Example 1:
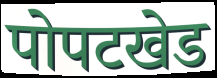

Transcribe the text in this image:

पोपटखेड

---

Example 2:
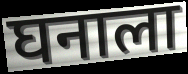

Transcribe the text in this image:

घनाला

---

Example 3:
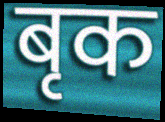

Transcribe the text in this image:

बृक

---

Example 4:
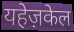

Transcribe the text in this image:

यहेज़केल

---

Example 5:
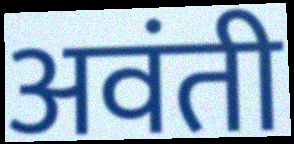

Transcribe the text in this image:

अवंती